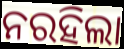
ନରହିଲା